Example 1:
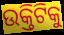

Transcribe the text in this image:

ଉକ୍ତିଟିକୁ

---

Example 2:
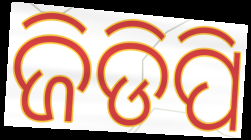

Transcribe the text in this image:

ଜିଡିପି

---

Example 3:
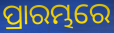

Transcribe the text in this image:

ପ୍ରାରମ୍ଭରେ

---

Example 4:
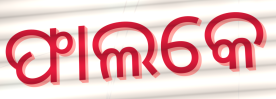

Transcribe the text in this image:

ଫାଲକେ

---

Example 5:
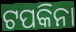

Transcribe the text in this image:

ଟପକିନା